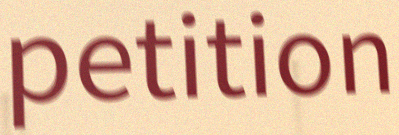
petition